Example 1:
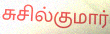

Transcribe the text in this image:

சுசில்குமார்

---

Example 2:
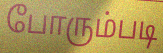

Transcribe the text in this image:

போரும்படி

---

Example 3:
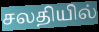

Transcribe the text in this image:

சலதியில்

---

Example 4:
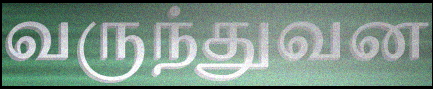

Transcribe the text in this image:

வருந்துவன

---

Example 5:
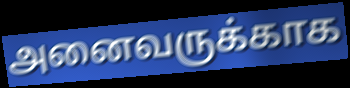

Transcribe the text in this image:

அனைவருக்காக